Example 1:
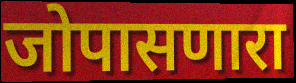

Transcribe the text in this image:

जोपासणारा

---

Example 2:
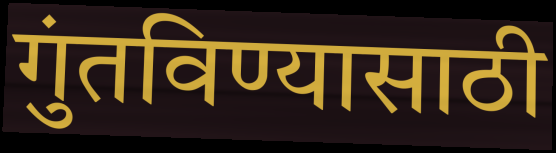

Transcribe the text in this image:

गुंतविण्यासाठी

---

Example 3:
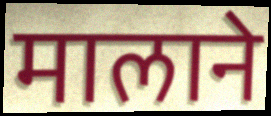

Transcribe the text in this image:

मालाने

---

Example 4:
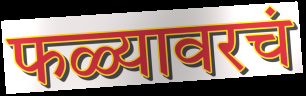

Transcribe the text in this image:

फळ्यावरचं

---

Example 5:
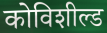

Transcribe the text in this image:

कोविशील्ड